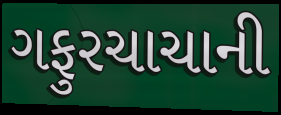
ગફુરચાચાની